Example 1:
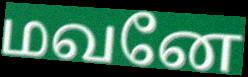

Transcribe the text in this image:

மவனே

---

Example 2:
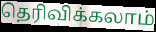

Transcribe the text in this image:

தெரிவிக்கலாம்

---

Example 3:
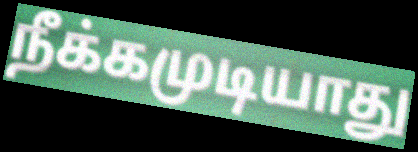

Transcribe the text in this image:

நீக்கமுடியாது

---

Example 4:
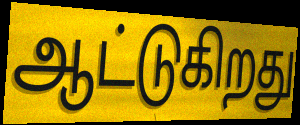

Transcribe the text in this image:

ஆட்டுகிறது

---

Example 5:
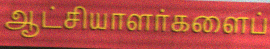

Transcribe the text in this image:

ஆட்சியாளர்களைப்